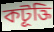
কটূক্তি